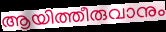
ആയിത്തീരുവാനും